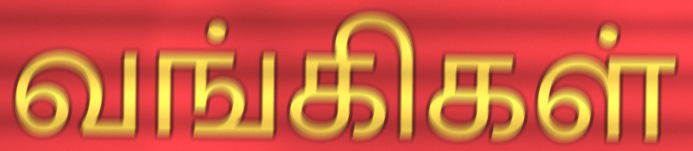
வங்கிகள்